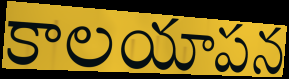
కాలయాపన